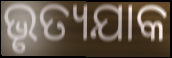
ଭୃତ୍ୟଯାକ